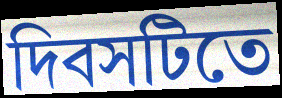
দিবসটিতে